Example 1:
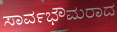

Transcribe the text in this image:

ಸಾರ್ವಭೌಮರಾದ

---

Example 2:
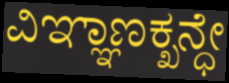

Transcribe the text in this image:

ವಿಞ್ಞಾಣಕ್ಖನ್ಧೇ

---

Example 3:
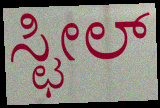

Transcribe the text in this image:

ಸ್ಟೀಲ್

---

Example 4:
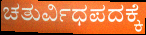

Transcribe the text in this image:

ಚತುರ್ವಿಧಪದಕ್ಕೆ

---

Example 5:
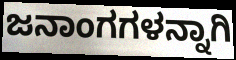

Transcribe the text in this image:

ಜನಾಂಗಗಳನ್ನಾಗಿ